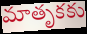
మాతృకకు